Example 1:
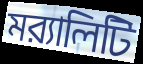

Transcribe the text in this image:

মর‍্যালিটি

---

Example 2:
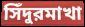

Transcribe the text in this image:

সিঁদুরমাখা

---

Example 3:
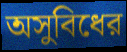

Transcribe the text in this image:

অসুবিধের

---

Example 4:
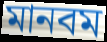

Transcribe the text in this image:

মানবম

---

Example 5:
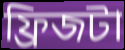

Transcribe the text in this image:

ফ্রিজটা